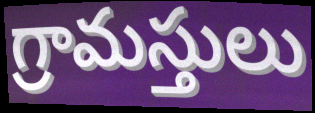
గ్రామస్తులు